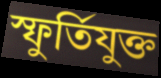
স্ফুর্তিযুক্ত